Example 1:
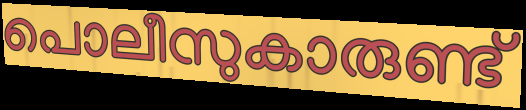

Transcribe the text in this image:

പൊലീസുകാരുണ്ട്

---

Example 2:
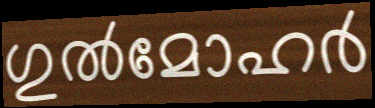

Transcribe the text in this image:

ഗുൽമോഹർ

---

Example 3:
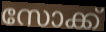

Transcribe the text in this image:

സോക്ക്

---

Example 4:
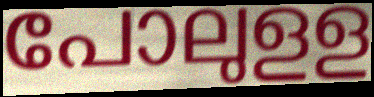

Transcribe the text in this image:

പോലുളള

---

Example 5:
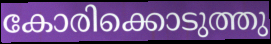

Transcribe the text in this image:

കോരിക്കൊടുത്തു